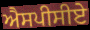
ਐਸਪੀਸੀਏ